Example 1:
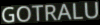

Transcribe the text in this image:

GOTRALU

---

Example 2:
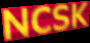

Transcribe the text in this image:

NCSK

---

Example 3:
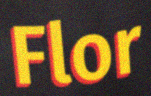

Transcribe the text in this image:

Flor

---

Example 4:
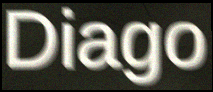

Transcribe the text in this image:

Diago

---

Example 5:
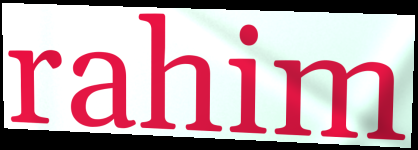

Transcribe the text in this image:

rahim